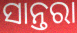
ସାନ୍ତରା